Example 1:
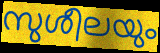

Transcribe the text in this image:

സുശീലയും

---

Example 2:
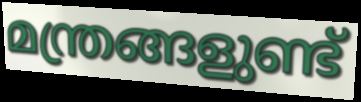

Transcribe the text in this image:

മന്ത്രങ്ങളുണ്ട്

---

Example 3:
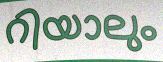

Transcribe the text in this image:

റിയാലും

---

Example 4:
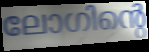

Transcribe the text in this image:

ലോഗിന്റെ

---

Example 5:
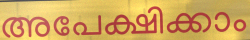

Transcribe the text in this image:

അപേക്ഷിക്കാം